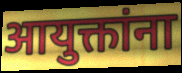
आयुक्तांना